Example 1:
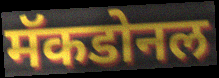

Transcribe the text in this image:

मॅकडोनल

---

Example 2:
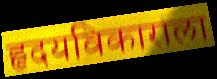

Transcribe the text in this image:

हृदयविकाराला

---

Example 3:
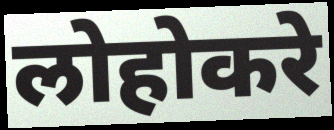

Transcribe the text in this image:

लोहोकरे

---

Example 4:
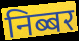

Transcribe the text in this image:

निब्बर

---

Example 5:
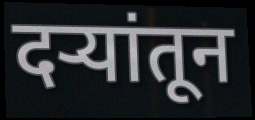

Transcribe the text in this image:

दऱ्यांतून